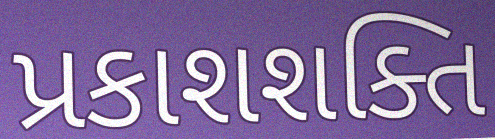
પ્રકાશશક્તિ